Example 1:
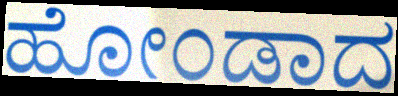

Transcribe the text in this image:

ಹೋಂಡಾದ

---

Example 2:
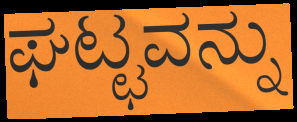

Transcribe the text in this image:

ಘಟ್ಟವನ್ನು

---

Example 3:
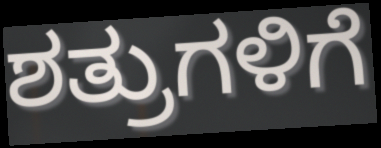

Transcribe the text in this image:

ಶತ್ರುಗಳಿಗೆ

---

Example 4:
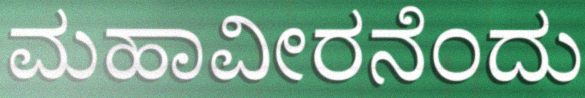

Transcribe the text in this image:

ಮಹಾವೀರನೆಂದು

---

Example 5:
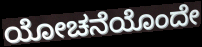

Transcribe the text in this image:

ಯೋಚನೆಯೊಂದೇ